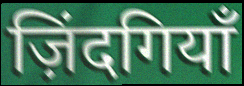
ज़िंदगियाँ